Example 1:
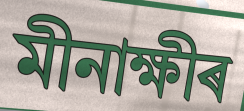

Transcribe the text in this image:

মীনাক্ষীৰ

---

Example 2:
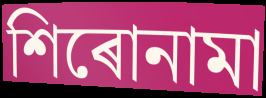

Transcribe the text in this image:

শিৰোনামা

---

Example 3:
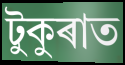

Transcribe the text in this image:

টুকুৰাত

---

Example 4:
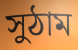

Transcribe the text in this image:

সুঠাম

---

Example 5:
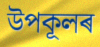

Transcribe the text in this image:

উপকূলৰ